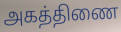
அகத்திணை